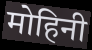
मोहिनी